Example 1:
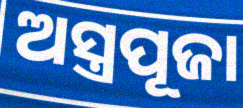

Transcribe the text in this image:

ଅସ୍ତ୍ରପୂଜା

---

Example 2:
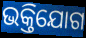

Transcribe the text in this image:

ଭକ୍ତିଯୋଗ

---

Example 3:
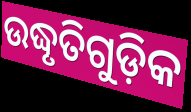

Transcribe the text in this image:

ଉଦ୍ଧୃତିଗୁଡ଼ିକ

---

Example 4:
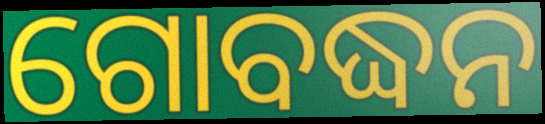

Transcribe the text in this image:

ଗୋବଦ୍ଧନ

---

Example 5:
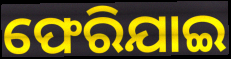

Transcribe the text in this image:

ଫେରିଯାଇ